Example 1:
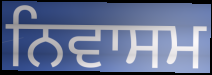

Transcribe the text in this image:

ਨਿਵਾਸਮ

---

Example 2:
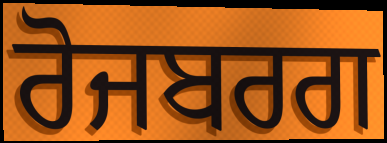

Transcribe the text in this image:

ਰੋਜਬਰਗ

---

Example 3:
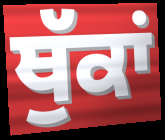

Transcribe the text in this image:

ਥੁੱਕਾਂ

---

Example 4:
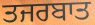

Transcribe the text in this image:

ਤਜਰਬਾਤ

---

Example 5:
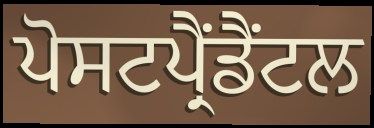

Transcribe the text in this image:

ਪੋਸਟਪ੍ਰੈਂਡੈਂਟਲ